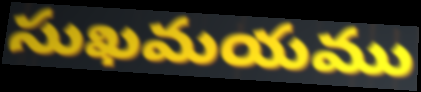
సుఖమయము